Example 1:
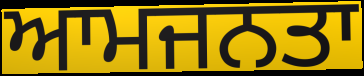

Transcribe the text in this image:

ਆਮਜਨਤਾ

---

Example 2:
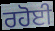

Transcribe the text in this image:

ਰਹੋਈ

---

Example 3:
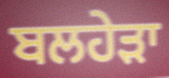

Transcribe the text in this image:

ਬਲਹੇੜਾ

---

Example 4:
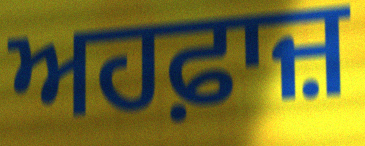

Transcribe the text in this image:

ਅਹਫ਼ਾਜ਼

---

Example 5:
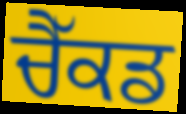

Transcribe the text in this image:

ਚੈੱਕਡ